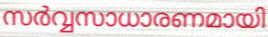
സർവ്വസാധാരണമായി